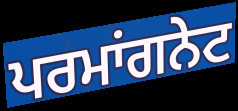
ਪਰਮਾਂਗਨੇਟ